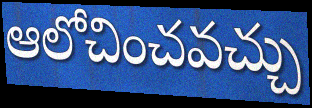
ఆలోచించవచ్చు